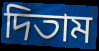
দিতাম